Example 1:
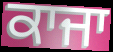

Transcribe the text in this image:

ਕਾਜਾ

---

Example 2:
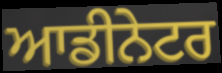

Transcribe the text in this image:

ਆਡੀਨੇਟਰ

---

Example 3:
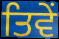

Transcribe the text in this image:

ਤਿਵੇਂ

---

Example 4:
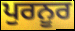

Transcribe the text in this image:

ਪੁਰਨੂਰ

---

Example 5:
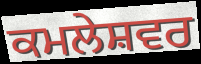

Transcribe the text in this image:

ਕਮਲੇਸ਼ਵਰ